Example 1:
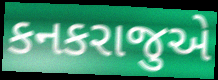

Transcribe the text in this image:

કનકરાજુએ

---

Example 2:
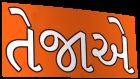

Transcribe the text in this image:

તેજાએ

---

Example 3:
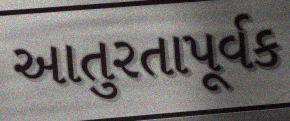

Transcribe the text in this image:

આતુરતાપૂર્વક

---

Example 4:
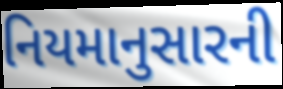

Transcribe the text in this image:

નિયમાનુસારની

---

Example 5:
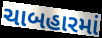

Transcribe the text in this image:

ચાબહારમાં